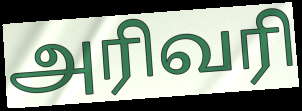
அரிவரி